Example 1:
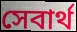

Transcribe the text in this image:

সেবার্থ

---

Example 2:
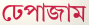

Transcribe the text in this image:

ঢেপাজাম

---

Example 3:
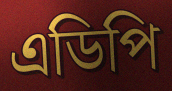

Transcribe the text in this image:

এডিপি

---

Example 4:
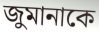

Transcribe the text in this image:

জুমানাকে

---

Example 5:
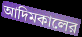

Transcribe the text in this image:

আদিমকালের